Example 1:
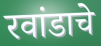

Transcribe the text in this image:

रवांडाचे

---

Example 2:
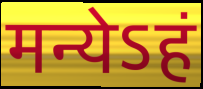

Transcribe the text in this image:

मन्येऽहं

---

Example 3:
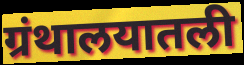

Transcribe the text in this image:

ग्रंथालयातली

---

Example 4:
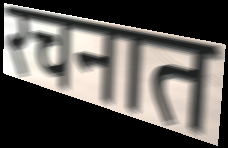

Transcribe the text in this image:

रचनात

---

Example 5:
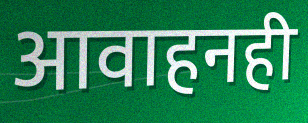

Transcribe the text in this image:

आवाहनही